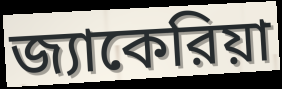
জ্যাকেরিয়া